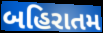
બહિરાતમ